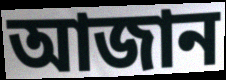
আজান